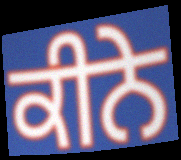
ਕੀਨੇ